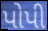
પોપી